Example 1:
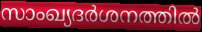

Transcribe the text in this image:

സാംഖ്യദർശനത്തിൽ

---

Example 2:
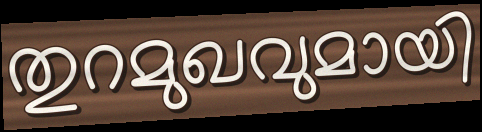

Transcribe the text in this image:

തുറമുഖവുമായി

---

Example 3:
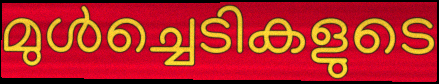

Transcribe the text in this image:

മുൾച്ചെടികളുടെ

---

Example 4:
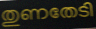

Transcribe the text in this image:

തുണതേടി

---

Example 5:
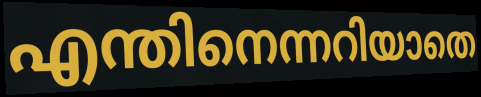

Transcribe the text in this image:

എന്തിനെന്നറിയാതെ